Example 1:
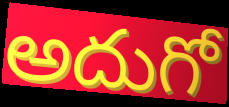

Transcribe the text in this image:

అదుగో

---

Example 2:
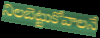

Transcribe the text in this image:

నిలబెట్టుకోవాలనే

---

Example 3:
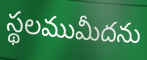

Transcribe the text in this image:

స్థలముమీదను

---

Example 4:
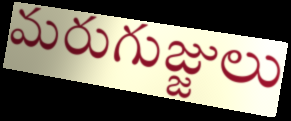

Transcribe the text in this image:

మరుగుజ్జులు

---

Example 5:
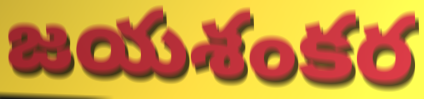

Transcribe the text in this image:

జయశంకర